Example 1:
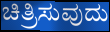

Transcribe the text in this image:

ಚಿತ್ರಿಸುವುದು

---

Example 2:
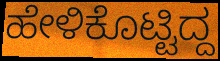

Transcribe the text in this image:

ಹೇಳಿಕೊಟ್ಟಿದ್ದ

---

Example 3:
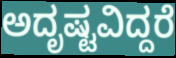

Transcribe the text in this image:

ಅದೃಷ್ಟವಿದ್ದರೆ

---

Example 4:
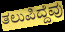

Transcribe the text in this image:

ತಲುಪಿದ್ದೆವು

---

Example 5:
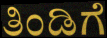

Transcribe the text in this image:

ತಿಂಡಿಗೆ